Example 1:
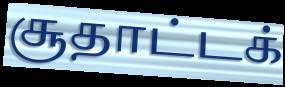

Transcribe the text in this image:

சூதாட்டக்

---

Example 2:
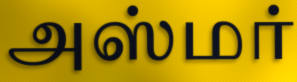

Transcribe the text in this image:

அஸ்மர்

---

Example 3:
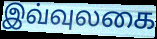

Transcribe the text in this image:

இவ்வுலகை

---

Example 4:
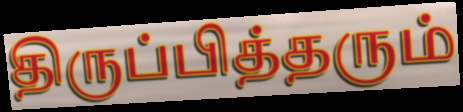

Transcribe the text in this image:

திருப்பித்தரும்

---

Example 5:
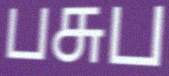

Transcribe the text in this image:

பசுப